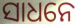
ସାଧନେ